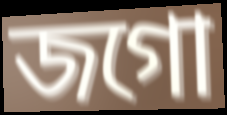
জগো